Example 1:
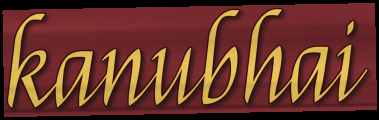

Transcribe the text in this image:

kanubhai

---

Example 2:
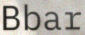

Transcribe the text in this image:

Bbar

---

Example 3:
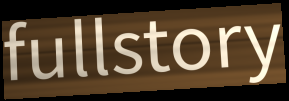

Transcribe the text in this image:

fullstory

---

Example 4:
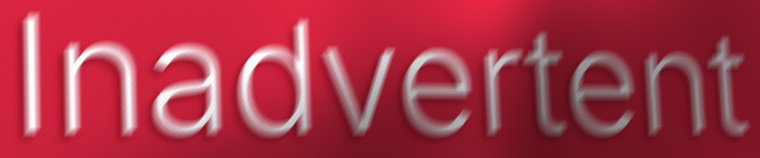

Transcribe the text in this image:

Inadvertent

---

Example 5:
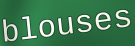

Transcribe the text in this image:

blouses